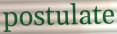
postulate